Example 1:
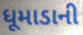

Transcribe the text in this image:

ધૂમાડાની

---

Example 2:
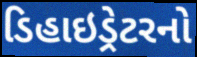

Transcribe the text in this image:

ડિહાઇડ્રેટરનો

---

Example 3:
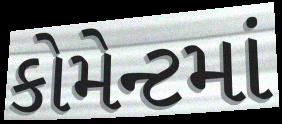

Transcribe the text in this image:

કોમેન્ટમાં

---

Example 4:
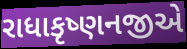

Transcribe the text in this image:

રાધાકૃષ્ણનજીએ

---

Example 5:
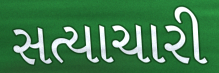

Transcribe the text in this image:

સત્યાચારી